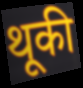
थूकी